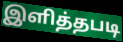
இளித்தபடி